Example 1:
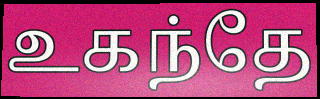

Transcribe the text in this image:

உகந்தே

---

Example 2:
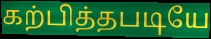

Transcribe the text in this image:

கற்பித்தபடியே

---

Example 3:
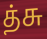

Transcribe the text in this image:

த்சு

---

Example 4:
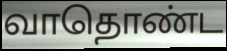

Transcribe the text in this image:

வாதொண்ட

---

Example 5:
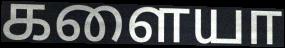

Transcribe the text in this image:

களையா